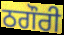
ਠਗੌਰੀ